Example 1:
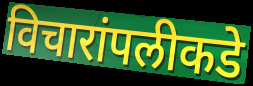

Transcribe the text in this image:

विचारांपलीकडे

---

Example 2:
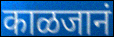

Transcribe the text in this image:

काळजानं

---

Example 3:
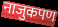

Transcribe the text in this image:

नाजुकपण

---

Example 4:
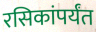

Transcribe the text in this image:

रसिकांपर्यंत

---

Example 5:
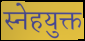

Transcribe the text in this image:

स्नेहयुक्त